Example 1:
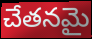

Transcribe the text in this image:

చేతనమై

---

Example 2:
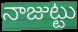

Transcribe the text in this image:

నాజుట్టు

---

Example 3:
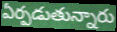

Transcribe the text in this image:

ఏర్పడుతున్నారు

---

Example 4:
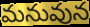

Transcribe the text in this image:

మనువున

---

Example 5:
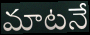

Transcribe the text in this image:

మాటనే